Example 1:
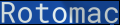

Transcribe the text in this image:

Rotomac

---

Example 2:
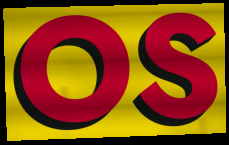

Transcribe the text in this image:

OS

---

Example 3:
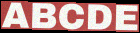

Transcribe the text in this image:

ABCDE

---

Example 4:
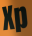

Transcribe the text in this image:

Xp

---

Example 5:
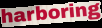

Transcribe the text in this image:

harboring